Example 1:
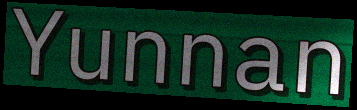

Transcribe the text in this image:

Yunnan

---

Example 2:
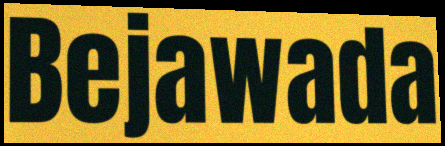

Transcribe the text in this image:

Bejawada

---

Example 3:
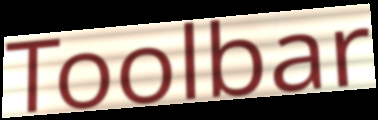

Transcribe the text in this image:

Toolbar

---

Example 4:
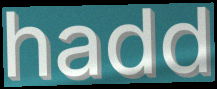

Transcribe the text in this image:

hadd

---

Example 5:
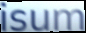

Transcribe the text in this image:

isum